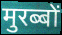
मुरब्बों